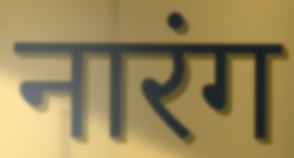
नारंग